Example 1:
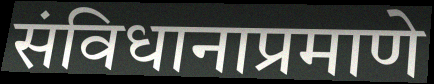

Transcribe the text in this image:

संविधानाप्रमाणे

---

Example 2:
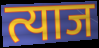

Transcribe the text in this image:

त्याज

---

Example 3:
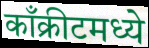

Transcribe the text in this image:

काँक्रीटमध्ये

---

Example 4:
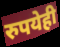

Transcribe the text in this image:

रुपयेही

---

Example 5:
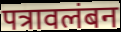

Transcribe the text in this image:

पत्रावलंबन